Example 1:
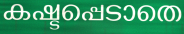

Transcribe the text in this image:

കഷ്ടപ്പെടാതെ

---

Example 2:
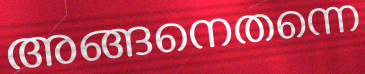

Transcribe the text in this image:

അങ്ങനെതന്നെ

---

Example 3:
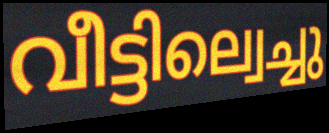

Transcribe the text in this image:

വീട്ടില്വെച്ചു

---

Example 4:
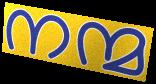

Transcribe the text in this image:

നന്മ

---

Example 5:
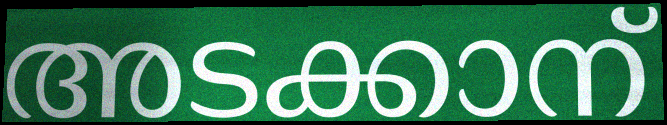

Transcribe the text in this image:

അടക്കാന്